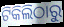
ଟିକିଲିଠାରୁ